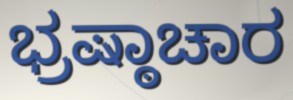
ಭ್ರಷ್ಠಾಚಾರ